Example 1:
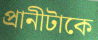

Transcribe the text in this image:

প্রানীটাকে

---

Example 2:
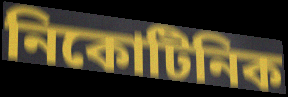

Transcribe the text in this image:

নিকোটিনিক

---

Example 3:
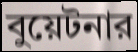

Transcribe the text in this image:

বুয়েটনার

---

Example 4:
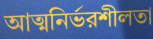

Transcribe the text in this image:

আত্মনির্ভরশীলতা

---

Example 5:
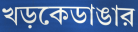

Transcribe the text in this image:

খড়কেডাঙার